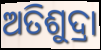
ଅତିଶୁଦ୍ରା